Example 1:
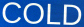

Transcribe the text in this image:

COLD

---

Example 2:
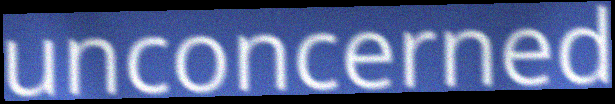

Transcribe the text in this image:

unconcerned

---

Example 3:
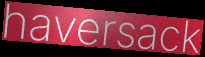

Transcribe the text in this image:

haversack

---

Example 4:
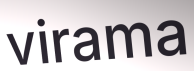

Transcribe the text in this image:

virama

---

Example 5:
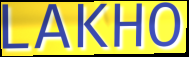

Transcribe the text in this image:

LAKHO